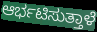
ಆರ್ಭಟಿಸುತ್ತಾಳೆ